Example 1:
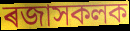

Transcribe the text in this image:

ৰজাসকলক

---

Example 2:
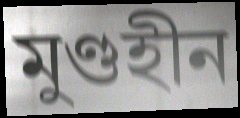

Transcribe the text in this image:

মুণ্ডহীন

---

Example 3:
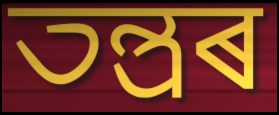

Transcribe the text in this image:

তন্ত্ৰৰ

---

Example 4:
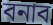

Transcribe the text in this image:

বনাব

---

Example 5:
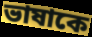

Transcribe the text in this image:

ভাষাকে